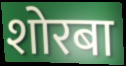
शोरबा